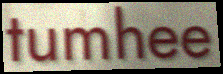
tumhee